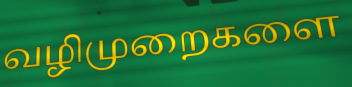
வழிமுறைகளை